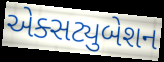
એક્સટ્યુબેશન